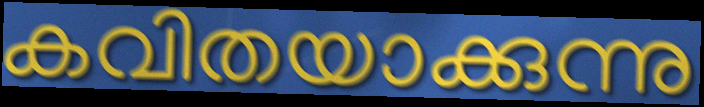
കവിതയാക്കുന്നു